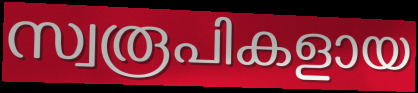
സ്വരൂപികളായ